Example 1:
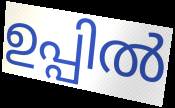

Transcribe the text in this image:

ഉപ്പിൽ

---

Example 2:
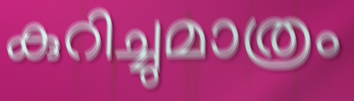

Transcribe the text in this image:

കുറിച്ചുമാത്രം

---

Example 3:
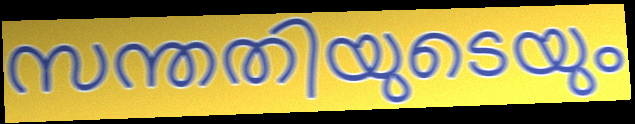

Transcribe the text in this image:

സന്തതിയുടെയും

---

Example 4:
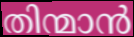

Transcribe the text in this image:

തിന്മാൻ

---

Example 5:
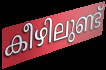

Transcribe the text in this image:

കീഴിലുണ്ട്